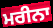
ਮਰੀਨਾ